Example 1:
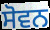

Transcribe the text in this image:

ਸੋਵਨ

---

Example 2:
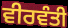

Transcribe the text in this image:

ਵੀਰਵੰਤੀ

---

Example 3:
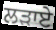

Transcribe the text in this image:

ਲੜਾਏ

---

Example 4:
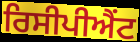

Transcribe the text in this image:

ਰਿਸੀਪੀਐਂਟ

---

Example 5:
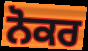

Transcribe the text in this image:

ਨੋਕਰ